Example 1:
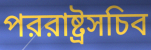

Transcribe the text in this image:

পররাষ্ট্রসচিব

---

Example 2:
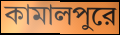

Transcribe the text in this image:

কামালপুরে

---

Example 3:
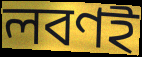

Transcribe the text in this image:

লবণই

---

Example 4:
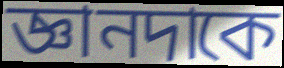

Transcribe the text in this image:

জ্ঞানদাকে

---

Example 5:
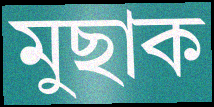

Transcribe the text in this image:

মুছাক